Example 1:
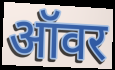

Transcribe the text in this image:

ऑवर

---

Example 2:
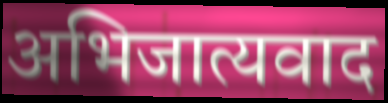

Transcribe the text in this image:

अभिजात्यवाद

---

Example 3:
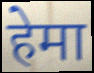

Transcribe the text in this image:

हेमा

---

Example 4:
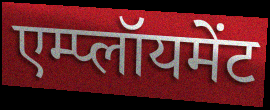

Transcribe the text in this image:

एम्प्लॉयमेंट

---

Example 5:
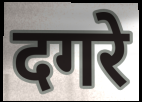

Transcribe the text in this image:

दगरे